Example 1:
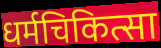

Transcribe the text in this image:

धर्मचिकित्सा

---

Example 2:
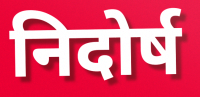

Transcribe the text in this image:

निदोर्ष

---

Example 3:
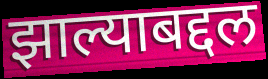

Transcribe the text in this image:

झाल्याबद्दल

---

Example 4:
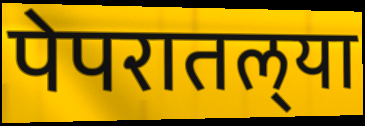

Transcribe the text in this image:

पेपरातल्या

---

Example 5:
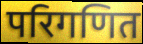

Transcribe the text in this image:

परिगणित